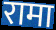
रामा